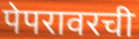
पेपरावरची